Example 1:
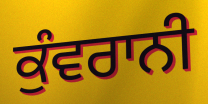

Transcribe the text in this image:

ਕੁੰਵਰਾਨੀ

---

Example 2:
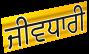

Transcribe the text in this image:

ਜੀਵਧਾਰੀ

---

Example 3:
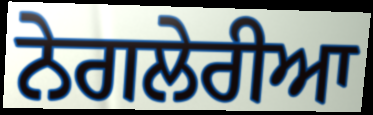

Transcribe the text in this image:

ਨੇਗਲੇਰੀਆ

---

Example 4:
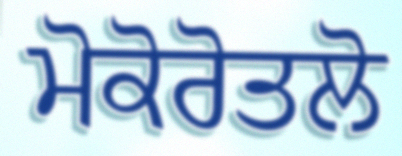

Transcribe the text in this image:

ਮੋਕੋਰੋਤਲੋ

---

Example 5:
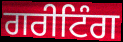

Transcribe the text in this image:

ਗਰੀਟਿੰਗ